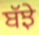
ਬੱਝੇ